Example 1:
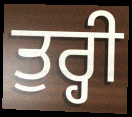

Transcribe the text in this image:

ਤੁਰ੍ਹੀ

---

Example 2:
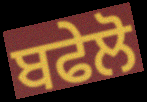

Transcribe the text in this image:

ਬਫੇਲੋ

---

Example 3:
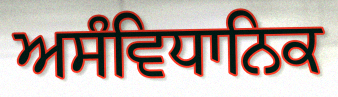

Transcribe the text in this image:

ਅਸੰਵਿਧਾਨਿਕ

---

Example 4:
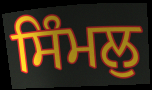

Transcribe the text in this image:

ਸਿੰਮਲੁ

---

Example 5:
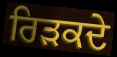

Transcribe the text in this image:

ਰਿੜਕਦੇ